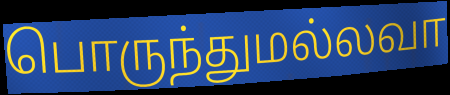
பொருந்துமல்லவா